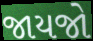
જાયજો